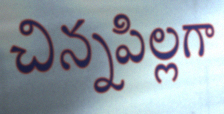
చిన్నపిల్లగా